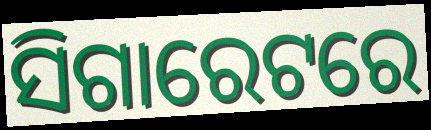
ସିଗାରେଟରେ